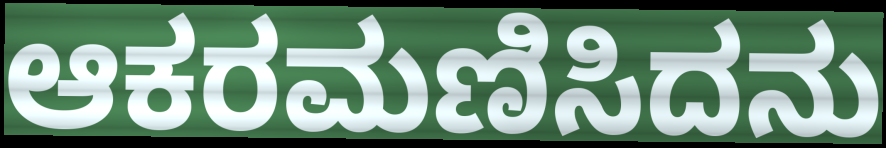
ಆಕರಮಣಿಸಿದನು